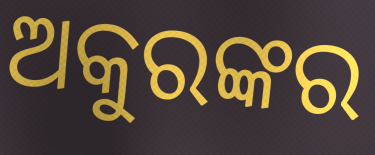
ଅକୁରଙ୍କର